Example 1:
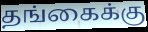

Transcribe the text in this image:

தங்கைக்கு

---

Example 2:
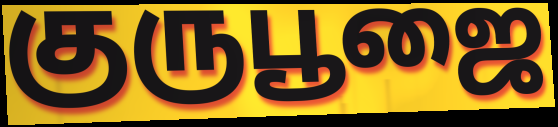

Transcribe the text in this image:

குருபூஜை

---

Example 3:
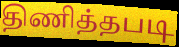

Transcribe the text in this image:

திணித்தபடி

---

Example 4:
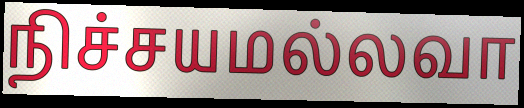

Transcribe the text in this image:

நிச்சயமல்லவா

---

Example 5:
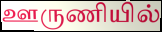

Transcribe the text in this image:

ஊருணியில்